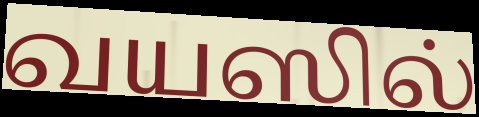
வயஸில்